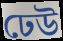
ঢেউ